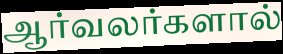
ஆர்வலர்களால்